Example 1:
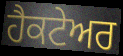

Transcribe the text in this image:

ਹੈਕਟੇਅਰ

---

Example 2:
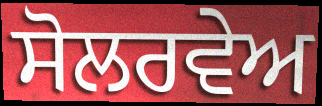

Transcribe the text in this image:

ਸੋਲਰਵੇਅ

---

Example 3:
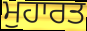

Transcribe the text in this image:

ਮੁਹਾਰਤ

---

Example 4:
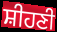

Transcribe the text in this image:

ਸ਼ੀਹਣੀ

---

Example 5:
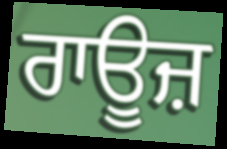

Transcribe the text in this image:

ਰਾਊਜ਼